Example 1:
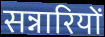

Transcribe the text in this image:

सन्नारियों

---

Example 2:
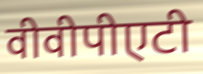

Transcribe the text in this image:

वीवीपीएटी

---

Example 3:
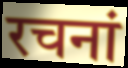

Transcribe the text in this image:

रचनां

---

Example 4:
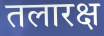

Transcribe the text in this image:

तलारक्ष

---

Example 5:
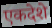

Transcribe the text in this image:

एकदेशे